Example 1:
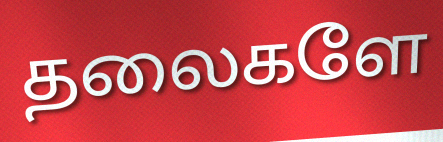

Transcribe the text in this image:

தலைகளே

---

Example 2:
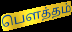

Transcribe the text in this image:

பௌத்தம்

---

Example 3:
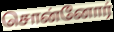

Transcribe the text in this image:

சொன்னோர்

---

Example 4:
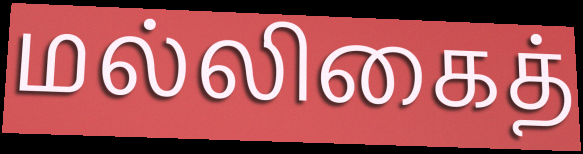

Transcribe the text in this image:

மல்லிகைத்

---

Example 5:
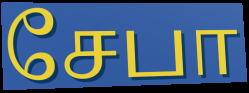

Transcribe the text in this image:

சேபா